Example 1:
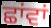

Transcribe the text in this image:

ਛਾਂਵਾਂ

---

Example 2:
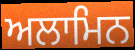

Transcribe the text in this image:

ਅਲਾਮਿਨ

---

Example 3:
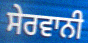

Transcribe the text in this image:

ਸੇਰਵਾਨੀ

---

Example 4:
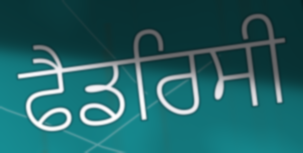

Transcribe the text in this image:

ਫੈਡਰਿਸੀ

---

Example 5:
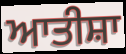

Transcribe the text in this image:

ਆਤੀਸ਼ਾ